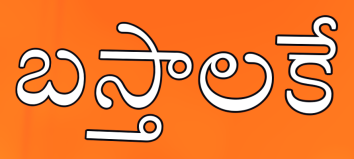
బస్తాలకే